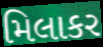
મિલાકર